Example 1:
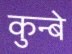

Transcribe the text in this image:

कुन्बे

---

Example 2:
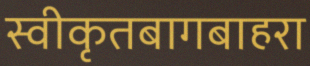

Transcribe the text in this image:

स्वीकृतबागबाहरा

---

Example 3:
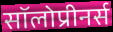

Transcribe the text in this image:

सॉलोप्रीनर्स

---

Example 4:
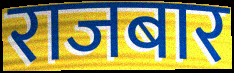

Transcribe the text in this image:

राजबार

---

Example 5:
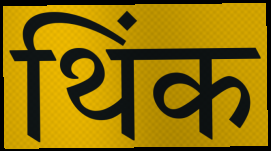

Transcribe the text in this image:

थिंक